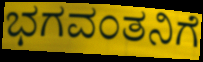
ಭಗವಂತನಿಗೆ